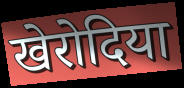
खेरोदिया